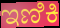
ಇಣಿಕಿ